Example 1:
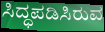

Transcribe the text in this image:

ಸಿದ್ಧಪಡಿಸಿರುವ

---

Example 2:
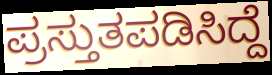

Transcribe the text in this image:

ಪ್ರಸ್ತುತಪಡಿಸಿದ್ದೆ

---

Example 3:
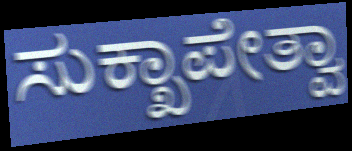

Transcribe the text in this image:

ಸುಕ್ಖಾಪೇತ್ವಾ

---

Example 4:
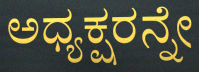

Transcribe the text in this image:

ಅಧ್ಯಕ್ಷರನ್ನೇ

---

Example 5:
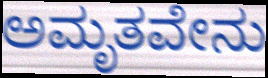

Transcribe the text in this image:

ಅಮೃತವೇನು